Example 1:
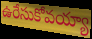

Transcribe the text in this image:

ఉరేసుకోవయ్యా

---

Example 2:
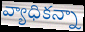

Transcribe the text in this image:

వ్యాధికన్నా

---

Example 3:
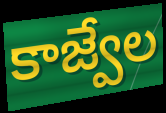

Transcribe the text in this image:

కాజ్వేల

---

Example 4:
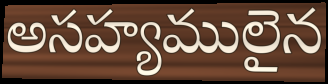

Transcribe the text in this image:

అసహ్యములైన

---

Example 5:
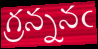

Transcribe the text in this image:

గ్రన్ననఁ